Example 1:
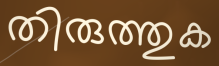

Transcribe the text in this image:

തിരുത്തുക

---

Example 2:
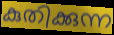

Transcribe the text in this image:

കുതിക്കുന്ന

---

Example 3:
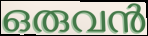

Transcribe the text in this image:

ഒരുവൻ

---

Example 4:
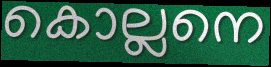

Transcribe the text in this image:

കൊല്ലനെ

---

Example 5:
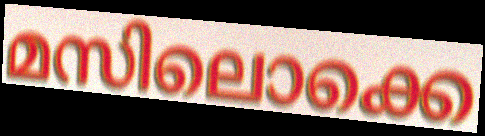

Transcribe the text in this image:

മസിലൊക്കെ